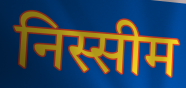
निस्सीम